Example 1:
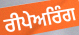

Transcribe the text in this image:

ਰੀਪੇਅਰਿੰਗ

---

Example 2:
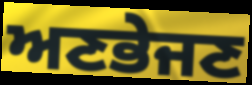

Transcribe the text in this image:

ਅਣਭੇਜਣ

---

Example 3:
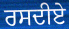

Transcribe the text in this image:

ਰਸਦੀਏ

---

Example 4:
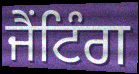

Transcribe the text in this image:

ਜੈਂਟਿੰਗ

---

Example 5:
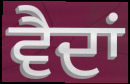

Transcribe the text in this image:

ਵੈਦਾਂ